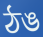
ঠঙ